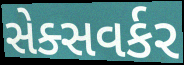
સેક્સવર્કર